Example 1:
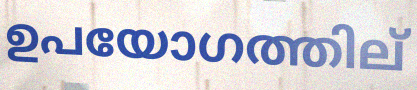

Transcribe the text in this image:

ഉപയോഗത്തില്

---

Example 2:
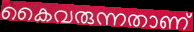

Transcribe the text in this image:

കൈവരുന്നതാണ്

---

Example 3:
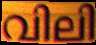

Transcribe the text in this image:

വിലി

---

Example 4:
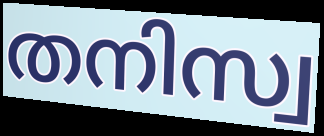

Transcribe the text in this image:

തനിസ്വ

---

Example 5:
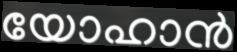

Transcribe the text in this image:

യോഹാൻ